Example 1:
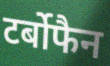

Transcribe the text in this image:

टर्बोफैन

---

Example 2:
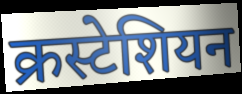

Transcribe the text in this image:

क्रस्टेशियन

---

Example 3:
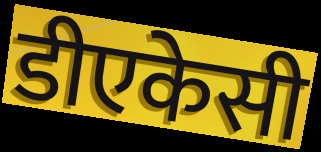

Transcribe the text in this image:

डीएकेसी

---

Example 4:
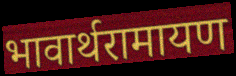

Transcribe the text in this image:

भावार्थरामायण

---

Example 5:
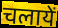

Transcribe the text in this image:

चलायें